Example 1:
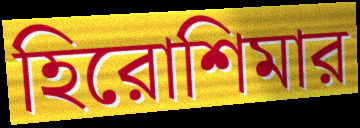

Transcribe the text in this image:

হিরোশিমার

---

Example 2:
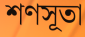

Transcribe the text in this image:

শণসূতা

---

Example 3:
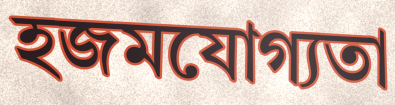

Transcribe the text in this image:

হজমযোগ্যতা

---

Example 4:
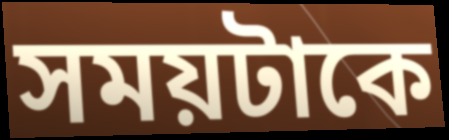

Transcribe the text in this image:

সময়টাকে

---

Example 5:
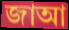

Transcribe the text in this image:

জাআ